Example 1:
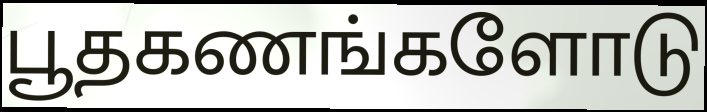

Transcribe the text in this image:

பூதகணங்களோடு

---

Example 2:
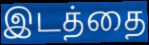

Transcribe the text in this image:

இடத்தை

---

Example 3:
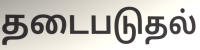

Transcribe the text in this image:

தடைபடுதல்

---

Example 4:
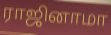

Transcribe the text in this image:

ராஜினாமா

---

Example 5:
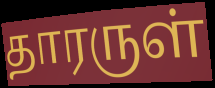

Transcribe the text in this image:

தாரருள்